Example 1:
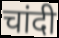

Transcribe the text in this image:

चांदी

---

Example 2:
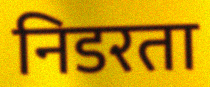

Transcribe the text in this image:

निडरता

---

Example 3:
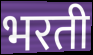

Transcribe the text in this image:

भरती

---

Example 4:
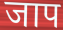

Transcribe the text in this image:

जाप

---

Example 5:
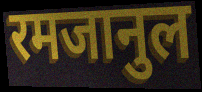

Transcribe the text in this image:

रमजानुल